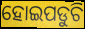
ହୋଇପଡୁଚି